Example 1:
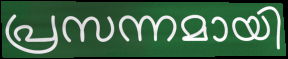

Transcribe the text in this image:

പ്രസന്നമായി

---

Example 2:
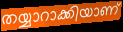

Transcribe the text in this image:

തയ്യാറാക്കിയാണ്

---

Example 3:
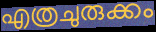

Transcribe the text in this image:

എത്രചുരുക്കം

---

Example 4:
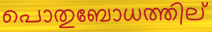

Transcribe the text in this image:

പൊതുബോധത്തില്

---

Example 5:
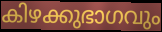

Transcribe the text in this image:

കിഴക്കുഭാഗവും